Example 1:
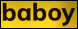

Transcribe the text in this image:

baboy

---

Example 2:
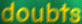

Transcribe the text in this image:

doubts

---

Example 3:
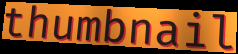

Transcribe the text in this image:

thumbnail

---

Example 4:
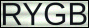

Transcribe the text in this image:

RYGB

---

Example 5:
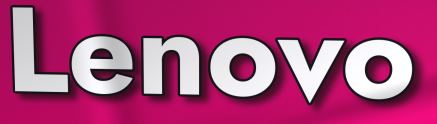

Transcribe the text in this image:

Lenovo